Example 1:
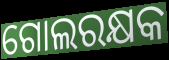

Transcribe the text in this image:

ଗୋଲରକ୍ଷକ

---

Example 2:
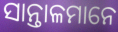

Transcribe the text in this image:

ସାନ୍ତାଳମାନେ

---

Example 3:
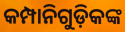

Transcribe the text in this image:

କମ୍ପାନିଗୁଡ଼ିକଙ୍କ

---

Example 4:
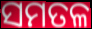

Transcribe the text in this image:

ସମତଳ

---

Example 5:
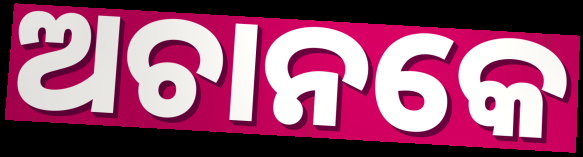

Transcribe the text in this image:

ଅଚାନକେ